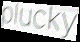
plucky